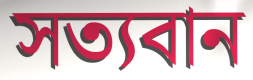
সত্যবান